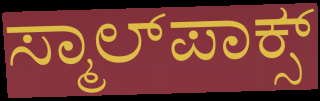
ಸ್ಮಾಲ್‌ಪಾಕ್ಸ್